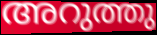
അറുത്തു